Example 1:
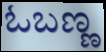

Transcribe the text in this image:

ಓಬಣ್ಣ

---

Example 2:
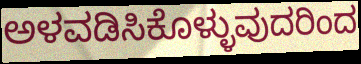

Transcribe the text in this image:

ಅಳವಡಿಸಿಕೊಳ್ಳುವುದರಿಂದ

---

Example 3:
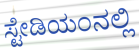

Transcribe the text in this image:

ಸ್ಟೇಡಿಯಂನಲ್ಲಿ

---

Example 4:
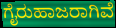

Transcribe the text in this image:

ಗೈರುಹಾಜರಾಗಿವೆ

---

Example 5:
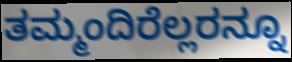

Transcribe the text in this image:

ತಮ್ಮಂದಿರೆಲ್ಲರನ್ನೂ